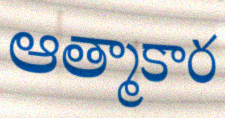
ఆత్మాకార